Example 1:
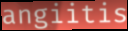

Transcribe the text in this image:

angiitis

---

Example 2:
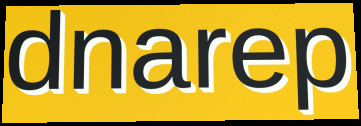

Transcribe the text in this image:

dnarep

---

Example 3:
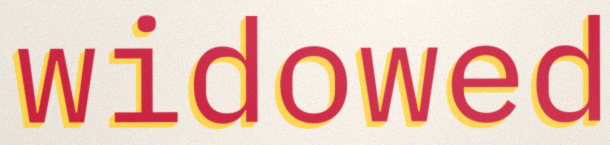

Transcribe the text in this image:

widowed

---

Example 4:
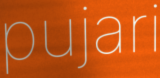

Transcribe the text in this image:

pujari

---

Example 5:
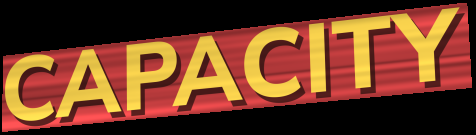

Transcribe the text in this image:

CAPACITY